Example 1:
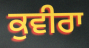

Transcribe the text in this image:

ਕੁਵੀਰਾ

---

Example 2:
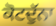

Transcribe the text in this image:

ਕੋਟਦੁੱਨਾ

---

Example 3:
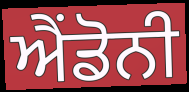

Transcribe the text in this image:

ਐਂਡੋਨੀ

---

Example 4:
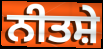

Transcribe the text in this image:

ਨੀਤਸ਼ੇ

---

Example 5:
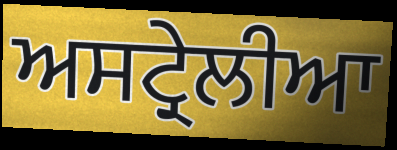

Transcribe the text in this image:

ਅਸਟ੍ਰੇਲੀਆ